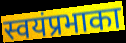
स्वयंप्रभाका